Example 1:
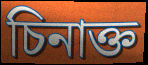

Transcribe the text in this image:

চিনাক্ত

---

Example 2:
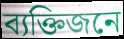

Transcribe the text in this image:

ব্যক্তিজনে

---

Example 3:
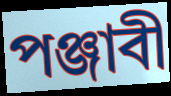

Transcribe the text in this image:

পঞ্জাবী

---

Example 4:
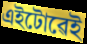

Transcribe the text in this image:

এইটোৱেই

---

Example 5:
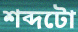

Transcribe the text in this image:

শব্দটো